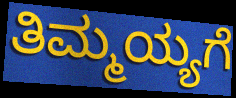
ತಿಮ್ಮಯ್ಯಗೆ